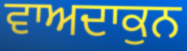
ਵਾਅਦਾਕੁਨ